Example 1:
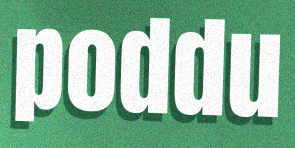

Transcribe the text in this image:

poddu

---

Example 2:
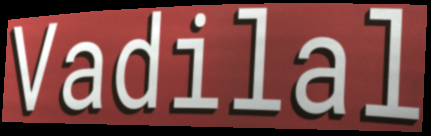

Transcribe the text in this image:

Vadilal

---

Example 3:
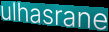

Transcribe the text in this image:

ulhasrane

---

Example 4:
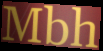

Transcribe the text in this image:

Mbh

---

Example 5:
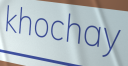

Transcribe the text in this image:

khochay